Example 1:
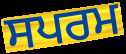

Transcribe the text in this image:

ਸਪਰਮ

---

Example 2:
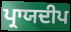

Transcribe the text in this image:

ਪ੍ਰਾਯਦੀਪ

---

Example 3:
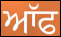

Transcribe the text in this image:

ਆੱਫ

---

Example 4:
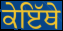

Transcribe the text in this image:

ਕੇਇੱਥੇ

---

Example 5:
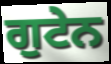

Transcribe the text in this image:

ਗੁਟੇਨ